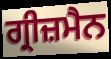
ਗ੍ਰੀਜ਼ਮੈਨ